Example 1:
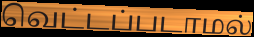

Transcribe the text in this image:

வெட்டப்படாமல்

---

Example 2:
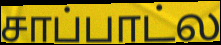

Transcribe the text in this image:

சாப்பாட்ல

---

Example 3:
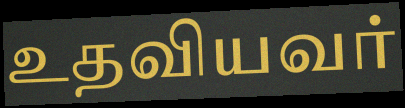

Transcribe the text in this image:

உதவியவர்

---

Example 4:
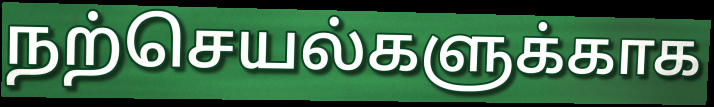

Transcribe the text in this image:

நற்செயல்களுக்காக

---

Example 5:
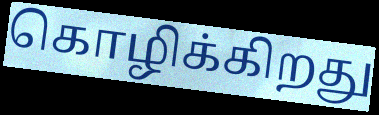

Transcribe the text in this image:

கொழிக்கிறது